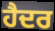
ਹੈਦਰ